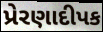
પ્રેરણાદીપક